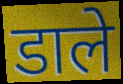
डाले